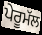
ਪੇਰੂਮੱਲ